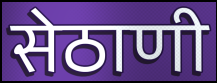
सेठाणी